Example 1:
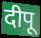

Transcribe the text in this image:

दीपू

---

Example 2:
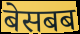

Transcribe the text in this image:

बेसबब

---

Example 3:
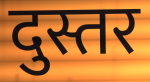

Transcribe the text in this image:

दुस्तर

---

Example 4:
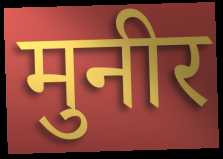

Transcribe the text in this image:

मुनीर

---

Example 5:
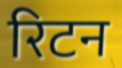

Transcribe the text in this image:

रिटन